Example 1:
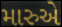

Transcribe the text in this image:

મારુએ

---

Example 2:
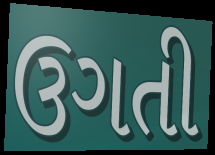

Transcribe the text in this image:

ઉગતી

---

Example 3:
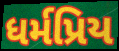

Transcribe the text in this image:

ધર્મપ્રિય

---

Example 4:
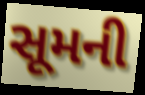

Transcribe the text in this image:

સૂમની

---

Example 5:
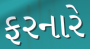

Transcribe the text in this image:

ફરનારે